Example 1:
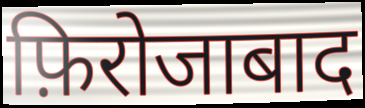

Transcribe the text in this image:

फ़िरोजाबाद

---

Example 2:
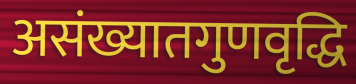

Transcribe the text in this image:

असंख्यातगुणवृद्धि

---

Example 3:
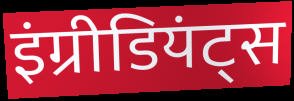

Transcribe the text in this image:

इंग्रीडियंट्स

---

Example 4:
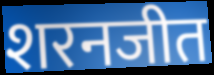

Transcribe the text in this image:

शरनजीत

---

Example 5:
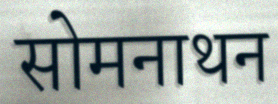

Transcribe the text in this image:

सोमनाथन